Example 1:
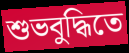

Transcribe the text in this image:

শুভবুদ্ধিতে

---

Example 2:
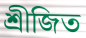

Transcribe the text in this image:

শ্রীজিত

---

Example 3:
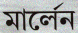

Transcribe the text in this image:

মার্লেন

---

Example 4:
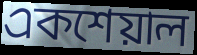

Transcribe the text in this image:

একশেয়াল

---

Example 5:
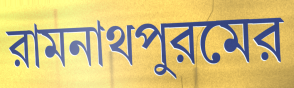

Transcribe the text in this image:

রামনাথপুরমের